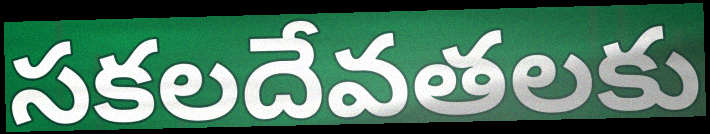
సకలదేవతలకు